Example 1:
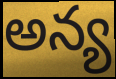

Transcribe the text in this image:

అన్య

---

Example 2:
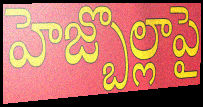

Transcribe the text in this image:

హెజ్బొల్లాపై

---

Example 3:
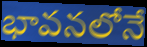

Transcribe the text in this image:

భావనలోనే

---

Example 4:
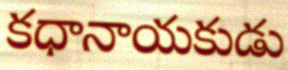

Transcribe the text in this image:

కధానాయకుడు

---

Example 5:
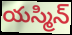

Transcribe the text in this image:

యస్మిన్